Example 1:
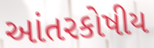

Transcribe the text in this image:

આંતરકોષીય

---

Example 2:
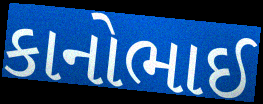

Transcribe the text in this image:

કાનોભાઈ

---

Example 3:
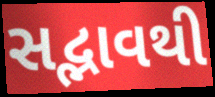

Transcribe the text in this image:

સદ્ભાવથી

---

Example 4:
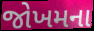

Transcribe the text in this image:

જોખમના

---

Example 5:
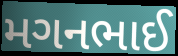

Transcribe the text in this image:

મગનભાઈ